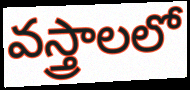
వస్త్రాలలో